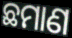
ଛମାଣ